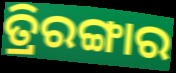
ତ୍ରିରଙ୍ଗାର